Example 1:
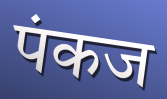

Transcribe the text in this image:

पंकज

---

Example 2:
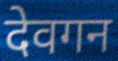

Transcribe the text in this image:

देवगन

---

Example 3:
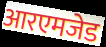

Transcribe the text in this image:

आरएमजेड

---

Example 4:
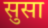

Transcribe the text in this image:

सुसा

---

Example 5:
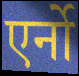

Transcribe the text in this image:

एर्नो